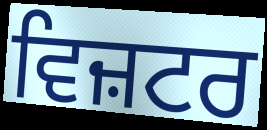
ਵਿਜ਼ਟਰ